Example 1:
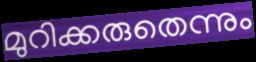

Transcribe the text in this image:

മുറിക്കരുതെന്നും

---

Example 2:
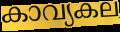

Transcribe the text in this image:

കാവ്യകല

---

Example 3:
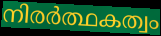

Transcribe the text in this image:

നിരർത്ഥകത്വം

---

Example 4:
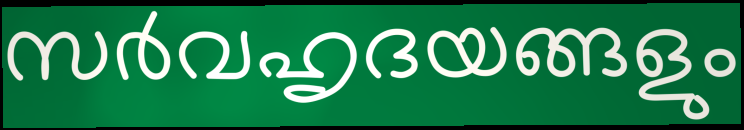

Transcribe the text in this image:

സർവഹൃദയങ്ങളും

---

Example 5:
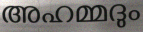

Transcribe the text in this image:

അഹമ്മദും